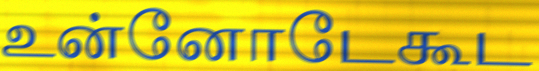
உன்னோடேகூட